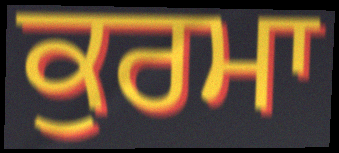
ਕੁਰਮਾ